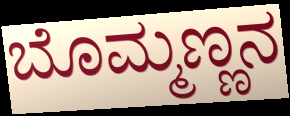
ಬೊಮ್ಮಣ್ಣನ